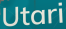
Utari